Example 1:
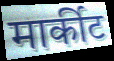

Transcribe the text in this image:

मार्कीट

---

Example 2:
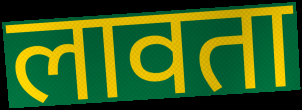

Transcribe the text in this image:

लावता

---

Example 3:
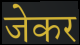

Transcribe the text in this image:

जेकर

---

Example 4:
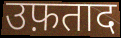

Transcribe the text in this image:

उफ़ताद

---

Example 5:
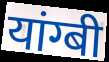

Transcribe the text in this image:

यांग्बी